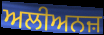
ਅਲੀਅਨਜ਼